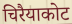
चिरैयाकोट